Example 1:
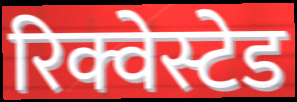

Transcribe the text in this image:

रिक्वेस्टेड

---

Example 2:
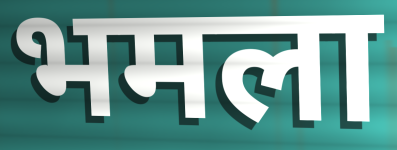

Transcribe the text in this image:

भमला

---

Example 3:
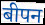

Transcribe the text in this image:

बीपन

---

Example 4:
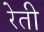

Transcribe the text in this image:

रेती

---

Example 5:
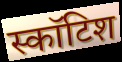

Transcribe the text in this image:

स्कॉटिश